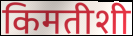
किमतीशी